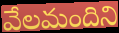
వేలమందిని